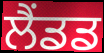
ਲੈਂਡਡ